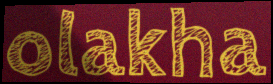
olakha